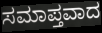
ಸಮಾಪ್ತವಾದ